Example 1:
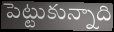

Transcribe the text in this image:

పెట్టుకున్నాది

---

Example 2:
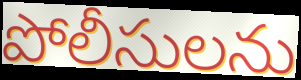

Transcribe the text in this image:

పోలీసులను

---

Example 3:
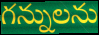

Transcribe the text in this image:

గన్నులను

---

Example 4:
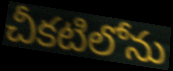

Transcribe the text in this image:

చీకటిలోను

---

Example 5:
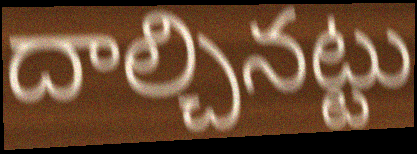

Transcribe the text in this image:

దాల్చినట్టు